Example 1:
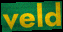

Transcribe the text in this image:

veld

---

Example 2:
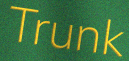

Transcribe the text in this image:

Trunk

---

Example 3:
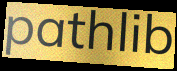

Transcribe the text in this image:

pathlib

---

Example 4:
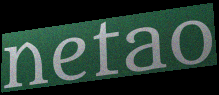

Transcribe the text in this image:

netao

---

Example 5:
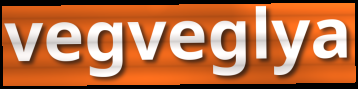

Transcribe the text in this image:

vegveglya